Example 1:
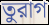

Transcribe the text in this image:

তুরাগ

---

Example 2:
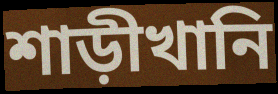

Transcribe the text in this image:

শাড়ীখানি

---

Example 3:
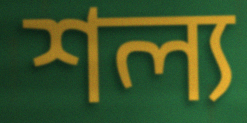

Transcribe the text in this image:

শল্য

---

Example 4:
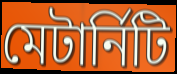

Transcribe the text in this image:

মেটার্নিটি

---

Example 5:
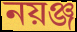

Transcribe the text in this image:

নয়ঞ্জ